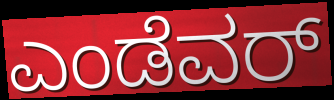
ಎಂಡೆವರ್